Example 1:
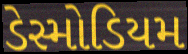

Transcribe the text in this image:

ડેસ્મોડિયમ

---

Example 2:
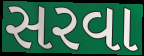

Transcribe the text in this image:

સરવા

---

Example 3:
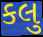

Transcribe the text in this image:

કલુ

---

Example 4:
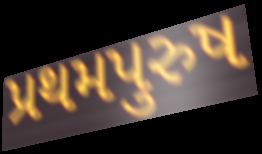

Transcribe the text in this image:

પ્રથમપુરુષ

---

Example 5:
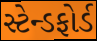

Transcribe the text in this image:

સ્ટેન્ડફોર્ડ